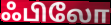
ஃபிலோ